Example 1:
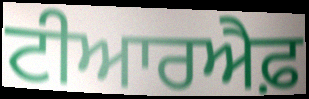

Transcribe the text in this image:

ਟੀਆਰਐਫ਼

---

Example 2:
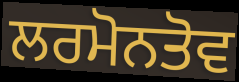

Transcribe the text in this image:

ਲਰਮੋਨਤੋਵ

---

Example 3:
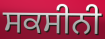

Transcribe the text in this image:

ਸਕਸੀਨੀ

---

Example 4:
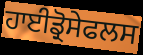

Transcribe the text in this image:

ਹਾਈਡ੍ਰੋਸੇਫਲਸ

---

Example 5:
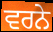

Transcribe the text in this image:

ਵਰਨੇ